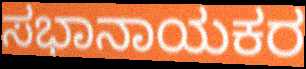
ಸಭಾನಾಯಕರ